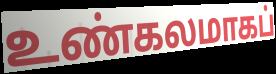
உண்கலமாகப்